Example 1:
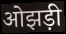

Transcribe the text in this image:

ओझड़ी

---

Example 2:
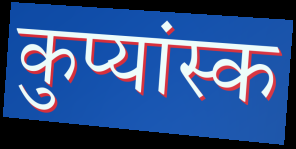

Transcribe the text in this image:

कुप्यांस्क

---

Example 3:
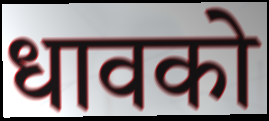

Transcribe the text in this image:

धावको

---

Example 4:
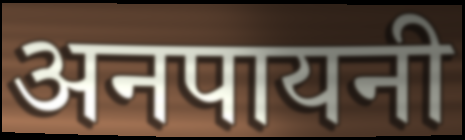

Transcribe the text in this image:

अनपायनी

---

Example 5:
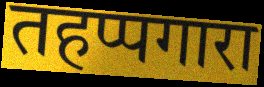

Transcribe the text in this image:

तहप्पगारा